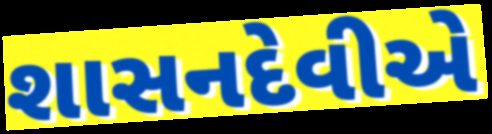
શાસનદેવીએ